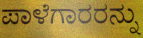
ಪಾಳೆಗಾರರನ್ನು